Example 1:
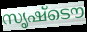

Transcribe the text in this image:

സൃഷ്ടൌ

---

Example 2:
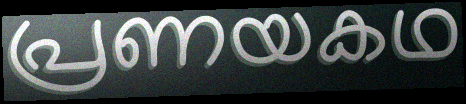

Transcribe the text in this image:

പ്രണയകഥ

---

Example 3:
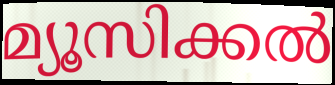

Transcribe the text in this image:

മ്യൂസിക്കൽ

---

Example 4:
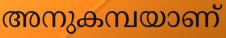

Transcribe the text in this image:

അനുകമ്പയാണ്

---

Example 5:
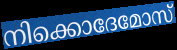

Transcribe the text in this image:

നിക്കൊദേമോസ്